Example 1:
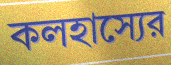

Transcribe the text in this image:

কলহাস্যের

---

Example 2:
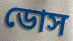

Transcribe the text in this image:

ডোস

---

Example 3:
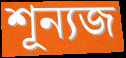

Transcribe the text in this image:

শূন্যজ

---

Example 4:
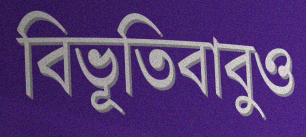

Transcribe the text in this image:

বিভূতিবাবুও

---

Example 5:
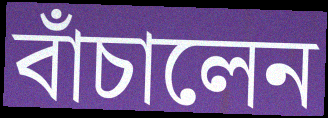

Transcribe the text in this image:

বাঁচালেন